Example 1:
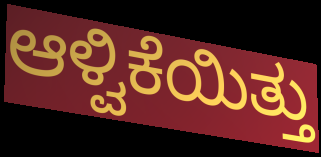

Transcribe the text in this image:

ಆಳ್ವಿಕೆಯಿತ್ತು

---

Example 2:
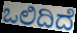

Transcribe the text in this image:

ಒಲಿದಿದೆ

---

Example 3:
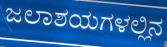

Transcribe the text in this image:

ಜಲಾಶಯಗಳಲ್ಲಿನ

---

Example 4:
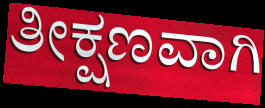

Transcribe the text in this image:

ತೀಕ್ಷಣವಾಗಿ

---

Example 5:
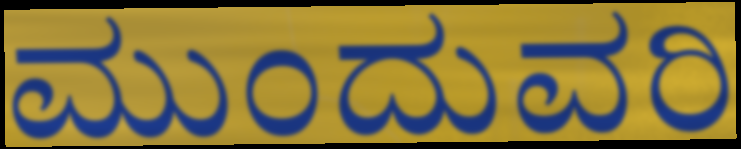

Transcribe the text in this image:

ಮುಂದುವರಿ